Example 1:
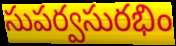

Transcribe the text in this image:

సుపర్వసురభిం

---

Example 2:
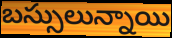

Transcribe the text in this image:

బస్సులున్నాయి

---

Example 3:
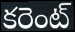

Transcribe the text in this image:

కరెంట్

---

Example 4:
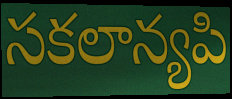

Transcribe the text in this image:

సకలాన్యపి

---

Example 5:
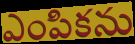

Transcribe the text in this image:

ఎంపికను